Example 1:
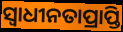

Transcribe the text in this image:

ସ୍ୱାଧୀନତାପ୍ରାପ୍ତି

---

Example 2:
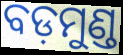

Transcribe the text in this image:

ବଡ଼ମୁଣ୍ଡ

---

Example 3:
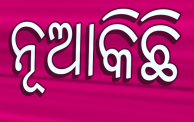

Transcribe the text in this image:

ନୂଆକିଛି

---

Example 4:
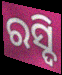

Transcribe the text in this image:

ରସ୍ଦି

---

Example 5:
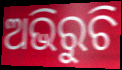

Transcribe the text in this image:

ଅଭିରୁଚି